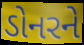
ડોનરને